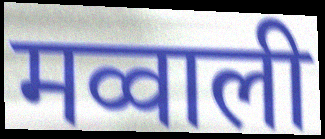
मव्वाली